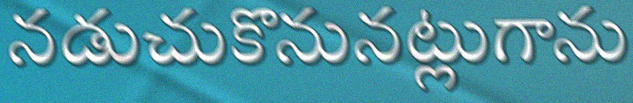
నడుచుకొనునట్లుగాను